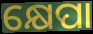
କ୍ଷେପା